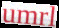
umrl